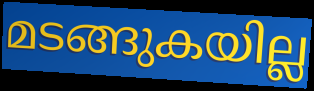
മടങ്ങുകയില്ല